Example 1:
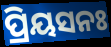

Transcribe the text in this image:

ପ୍ରିୟସନଃ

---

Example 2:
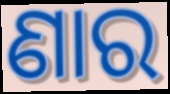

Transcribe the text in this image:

ଣାର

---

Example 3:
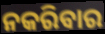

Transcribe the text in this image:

ନକରିବାର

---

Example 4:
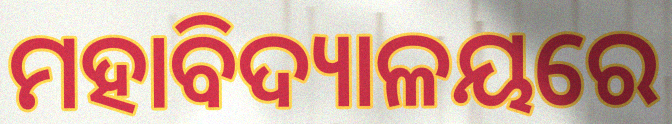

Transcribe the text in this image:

ମହାବିଦ୍ୟାଳୟରେ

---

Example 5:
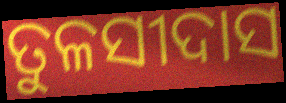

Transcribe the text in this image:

ତୁଳସୀଦାସ